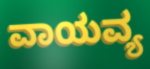
ವಾಯವ್ಯ